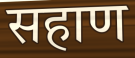
सहाण